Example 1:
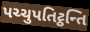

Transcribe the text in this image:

પચ્ચુપતિટ્ઠન્તિ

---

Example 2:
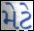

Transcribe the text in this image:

મેટે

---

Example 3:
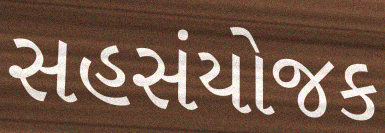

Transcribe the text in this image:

સહસંયોજક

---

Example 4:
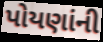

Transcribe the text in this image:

પોયણાંની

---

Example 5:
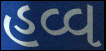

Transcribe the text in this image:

હવ્વ